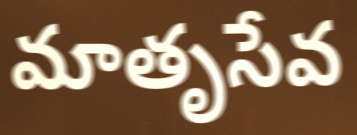
మాతృసేవ